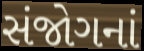
સંજોગનાં